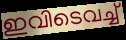
ഇവിടെവച്ച്